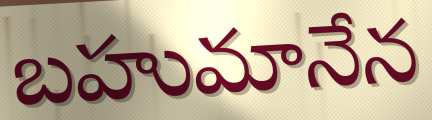
బహుమానేన